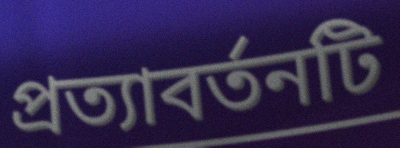
প্রত্যাবর্তনটি